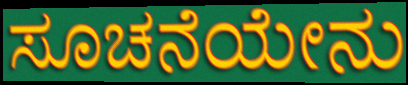
ಸೂಚನೆಯೇನು